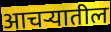
आचऱ्यातील